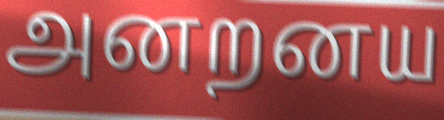
அனறனய